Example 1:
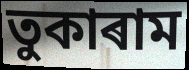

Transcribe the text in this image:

তুকাৰাম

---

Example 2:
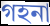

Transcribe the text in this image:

গহনা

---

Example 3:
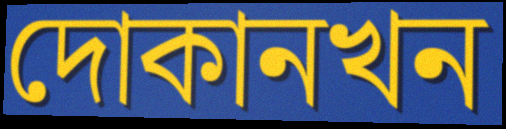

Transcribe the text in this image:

দোকানখন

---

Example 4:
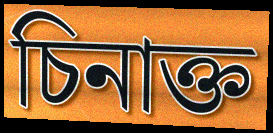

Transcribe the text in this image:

চিনাক্ত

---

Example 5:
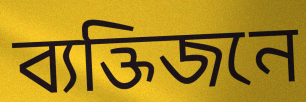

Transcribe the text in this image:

ব্যক্তিজনে